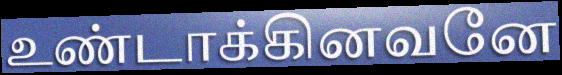
உண்டாக்கினவனே